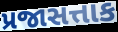
પ્રજાસત્તાક